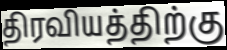
திரவியத்திற்கு